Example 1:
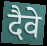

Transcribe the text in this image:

दैवे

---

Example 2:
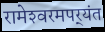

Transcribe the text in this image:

रामेश्वरमपर्यंत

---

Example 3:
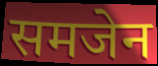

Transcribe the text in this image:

समजेन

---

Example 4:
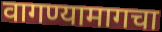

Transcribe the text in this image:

वागण्यामागचा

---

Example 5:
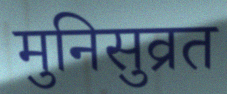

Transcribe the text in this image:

मुनिसुव्रत